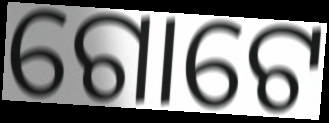
ଗୋଟେ